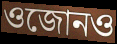
ওজোনও